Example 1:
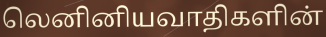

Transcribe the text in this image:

லெனினியவாதிகளின்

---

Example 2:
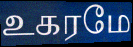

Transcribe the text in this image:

உகரமே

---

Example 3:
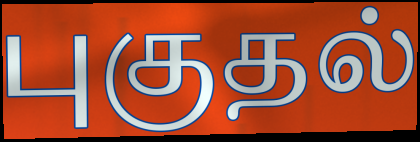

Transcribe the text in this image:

புகுதல்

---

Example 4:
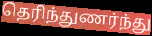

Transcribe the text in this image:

தெரிந்துணர்ந்து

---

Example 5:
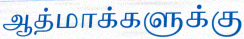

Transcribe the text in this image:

ஆத்மாக்களுக்கு